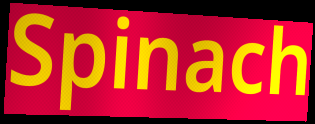
Spinach